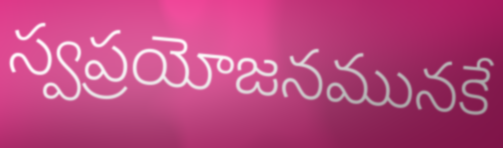
స్వప్రయోజనమునకే